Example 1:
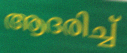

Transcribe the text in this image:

ആദരിച്ച്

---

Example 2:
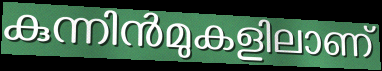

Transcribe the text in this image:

കുന്നിൻമുകളിലാണ്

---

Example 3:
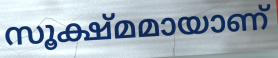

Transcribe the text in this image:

സൂക്ഷ്മമായാണ്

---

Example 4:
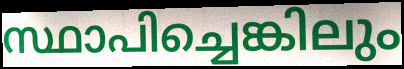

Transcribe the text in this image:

സ്ഥാപിച്ചെങ്കിലും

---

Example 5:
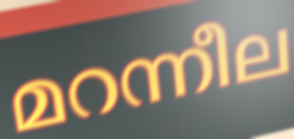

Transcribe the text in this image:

മറന്നീല